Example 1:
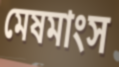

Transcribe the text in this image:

মেষমাংস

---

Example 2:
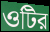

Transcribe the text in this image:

ওটির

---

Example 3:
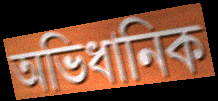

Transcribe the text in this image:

অভিধানিক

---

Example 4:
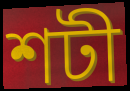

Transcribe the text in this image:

শটী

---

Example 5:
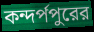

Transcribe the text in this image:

কন্দর্পপুরের